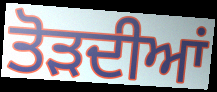
ਤੋੜਦੀਆਂ